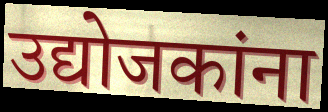
उद्योजकांना